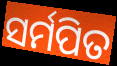
ସର୍ମପିତ